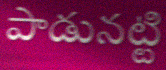
పాడునట్టి